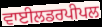
ਵਾਈਲਡਰਪੀਪਲ